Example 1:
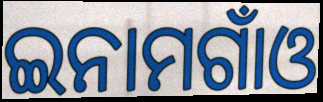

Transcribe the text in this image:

ଇନାମଗାଁଓ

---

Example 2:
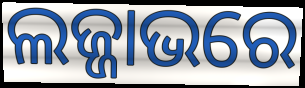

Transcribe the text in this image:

ଲଜ୍ଜାଭରେ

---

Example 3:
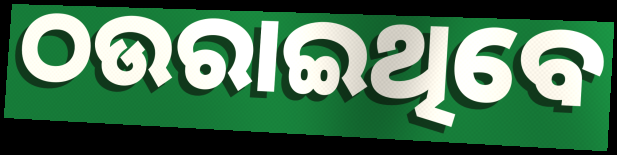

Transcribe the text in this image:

ଠଉରାଇଥିବେ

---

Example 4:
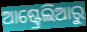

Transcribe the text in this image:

ଆଷ୍ଟ୍ରେଲିଆରୁ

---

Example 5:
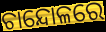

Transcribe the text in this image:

ଚାନ୍ଦୋଳରେ